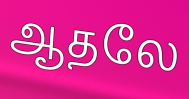
ஆதலே